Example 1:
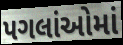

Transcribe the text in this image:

પગલાંઓમાં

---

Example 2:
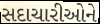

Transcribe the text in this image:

સદાચારીઓને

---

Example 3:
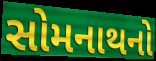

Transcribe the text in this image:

સોમનાથનો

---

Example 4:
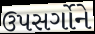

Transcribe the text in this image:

ઉપસર્ગોને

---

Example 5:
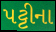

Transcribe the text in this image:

પટ્ટીના